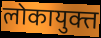
लोकायुक्त